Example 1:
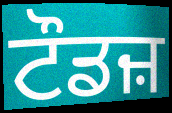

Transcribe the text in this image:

ਟੌਡਜ਼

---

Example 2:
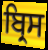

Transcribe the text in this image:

ਬ੍ਰਿਸ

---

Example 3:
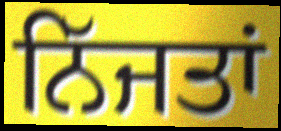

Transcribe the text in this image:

ਨਿੱਜਤਾਂ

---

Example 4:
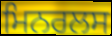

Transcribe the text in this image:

ਮਿਨਰਲਸ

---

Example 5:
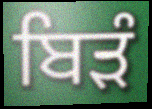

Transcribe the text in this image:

ਬਿੜੰ